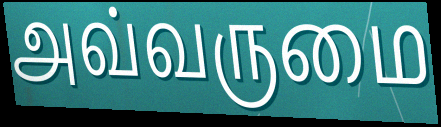
அவ்வருமை